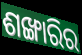
ଶଙ୍ଖାରିର